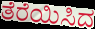
ತೆರೆಯಿಸಿದ